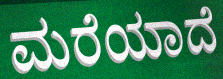
ಮರೆಯಾದೆ